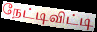
நேட்டிவிட்டி